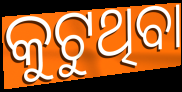
କୁଟୁଥିବା